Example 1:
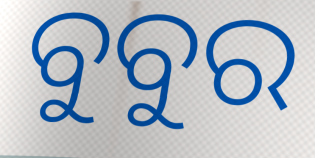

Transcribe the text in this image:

ବୁବୁର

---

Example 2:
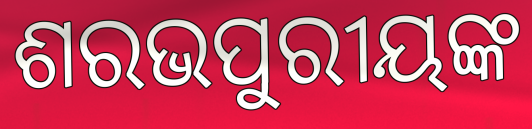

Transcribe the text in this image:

ଶରଭପୁରୀୟଙ୍କ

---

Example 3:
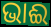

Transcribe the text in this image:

ଭାଈ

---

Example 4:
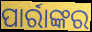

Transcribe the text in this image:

ପାର୍ରାଙ୍କର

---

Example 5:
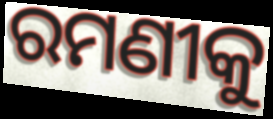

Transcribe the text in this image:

ରମଣୀକୁ